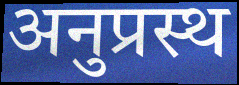
अनुप्रस्थ